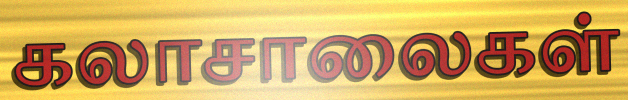
கலாசாலைகள்